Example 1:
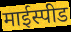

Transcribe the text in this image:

माईस्पीड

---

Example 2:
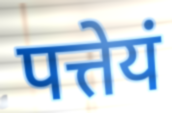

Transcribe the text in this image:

पत्तेयं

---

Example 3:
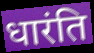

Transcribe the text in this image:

धारंति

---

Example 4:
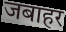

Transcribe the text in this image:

जबाहर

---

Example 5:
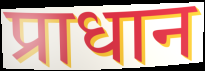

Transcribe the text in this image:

प्राधान